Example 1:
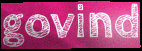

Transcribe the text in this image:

govind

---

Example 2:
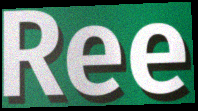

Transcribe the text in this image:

Ree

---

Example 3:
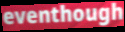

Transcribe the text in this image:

eventhough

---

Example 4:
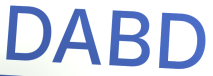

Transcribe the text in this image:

DABD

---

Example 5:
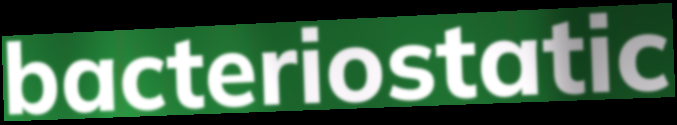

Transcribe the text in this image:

bacteriostatic